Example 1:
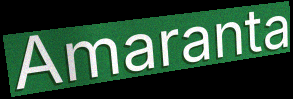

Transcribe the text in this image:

Amaranta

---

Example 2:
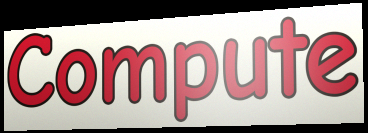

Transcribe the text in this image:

Compute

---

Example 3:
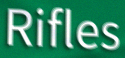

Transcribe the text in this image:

Rifles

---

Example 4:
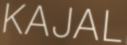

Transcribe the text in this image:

KAJAL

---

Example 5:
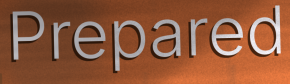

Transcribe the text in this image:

Prepared